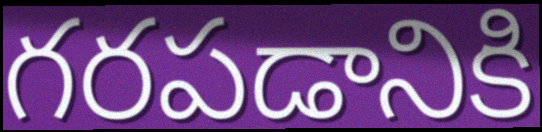
గరపడానికి